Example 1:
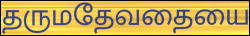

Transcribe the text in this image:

தருமதேவதையை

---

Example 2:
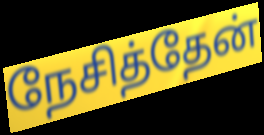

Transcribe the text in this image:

நேசித்தேன்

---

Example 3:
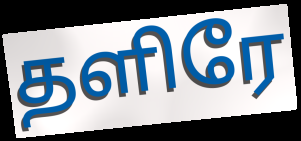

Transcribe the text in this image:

தளிரே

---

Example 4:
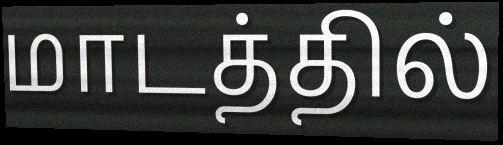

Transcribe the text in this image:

மாடத்தில்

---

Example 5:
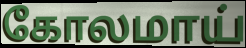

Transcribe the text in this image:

கோலமாய்